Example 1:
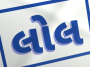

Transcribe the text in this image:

લોલ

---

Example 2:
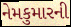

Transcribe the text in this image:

નેમકુમારની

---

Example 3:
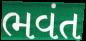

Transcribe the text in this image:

ભવંત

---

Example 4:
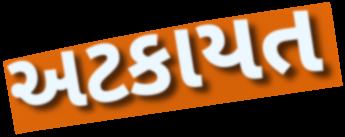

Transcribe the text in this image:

અટકાયત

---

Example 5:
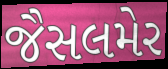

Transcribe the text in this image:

જૈસલમેર